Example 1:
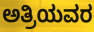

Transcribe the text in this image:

ಅತ್ರಿಯವರ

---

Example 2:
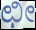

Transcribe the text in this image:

ಛೀ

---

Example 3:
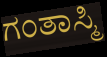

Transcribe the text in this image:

ಗಂತಾಸ್ಮಿ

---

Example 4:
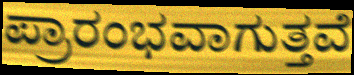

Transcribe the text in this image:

ಪ್ರಾರಂಭವಾಗುತ್ತವೆ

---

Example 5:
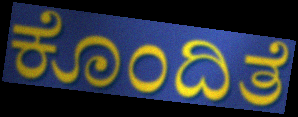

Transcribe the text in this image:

ಕೊಂದಿತೆ